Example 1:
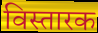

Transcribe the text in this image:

विस्तारक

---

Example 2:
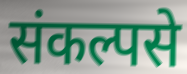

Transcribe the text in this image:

संकल्पसे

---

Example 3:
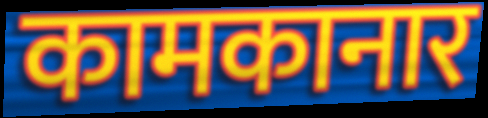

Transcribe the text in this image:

कामकानार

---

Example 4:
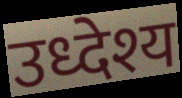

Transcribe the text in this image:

उध्देश्य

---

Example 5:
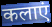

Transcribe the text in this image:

कलाएं